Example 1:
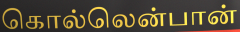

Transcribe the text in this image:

கொல்லென்பான்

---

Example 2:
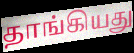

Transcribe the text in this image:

தாங்கியது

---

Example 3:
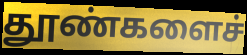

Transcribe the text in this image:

தூண்களைச்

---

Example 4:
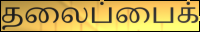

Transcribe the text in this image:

தலைப்பைக்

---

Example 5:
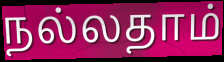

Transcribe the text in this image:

நல்லதாம்